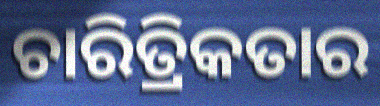
ଚାରିତ୍ରିକତାର